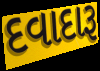
દવાદારૂ